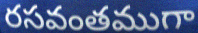
రసవంతముగా